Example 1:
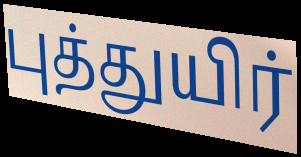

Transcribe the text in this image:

புத்துயிர்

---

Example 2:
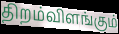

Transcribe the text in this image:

திறம்விளங்கும்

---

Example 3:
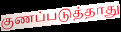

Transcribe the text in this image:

குணப்படுத்தாது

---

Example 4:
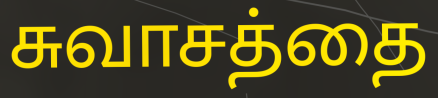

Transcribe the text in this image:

சுவாசத்தை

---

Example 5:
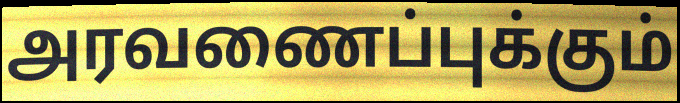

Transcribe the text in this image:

அரவணைப்புக்கும்